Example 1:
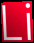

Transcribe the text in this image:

Li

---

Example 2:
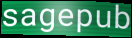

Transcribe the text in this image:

sagepub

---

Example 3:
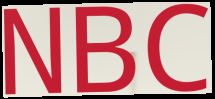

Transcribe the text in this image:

NBC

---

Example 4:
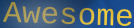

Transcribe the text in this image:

Awesome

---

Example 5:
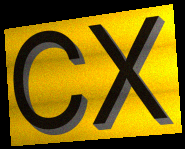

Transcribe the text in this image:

CX